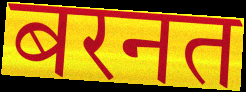
बरनत